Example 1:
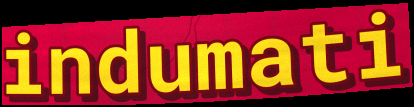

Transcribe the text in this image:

indumati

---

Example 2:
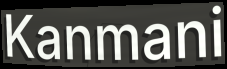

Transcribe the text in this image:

Kanmani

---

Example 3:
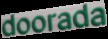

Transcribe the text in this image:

doorada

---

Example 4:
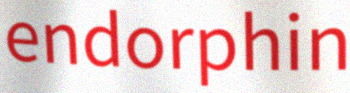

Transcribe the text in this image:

endorphin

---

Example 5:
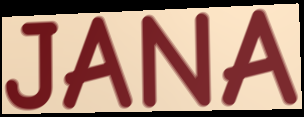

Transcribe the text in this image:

JANA